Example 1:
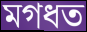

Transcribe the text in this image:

মগধত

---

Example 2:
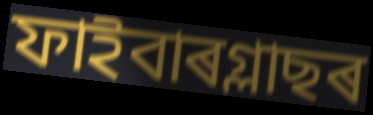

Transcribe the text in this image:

ফাইবাৰগ্লাছৰ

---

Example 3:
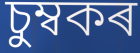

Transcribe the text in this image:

চুম্বকৰ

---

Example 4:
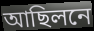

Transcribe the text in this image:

আছিলনে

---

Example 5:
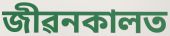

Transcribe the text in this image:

জীৱনকালত